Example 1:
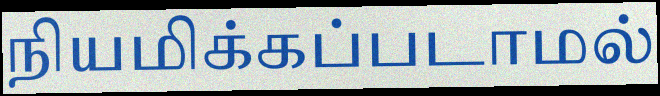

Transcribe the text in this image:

நியமிக்கப்படாமல்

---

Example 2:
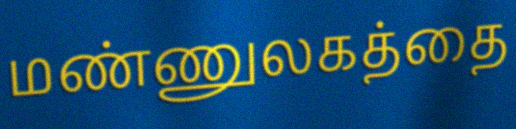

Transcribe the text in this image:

மண்ணுலகத்தை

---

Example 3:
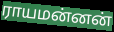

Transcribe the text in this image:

ராயமன்னன்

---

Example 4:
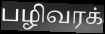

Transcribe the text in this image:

பழிவரக்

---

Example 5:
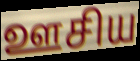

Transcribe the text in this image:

ஊசிய